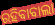
ରହିବାବାଲା